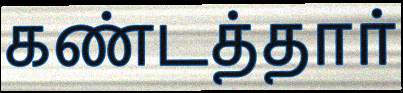
கண்டத்தார்